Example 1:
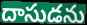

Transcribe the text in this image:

దాసుడను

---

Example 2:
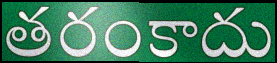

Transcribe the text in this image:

తరంకాదు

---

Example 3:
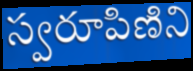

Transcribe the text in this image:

స్వరూపిణిని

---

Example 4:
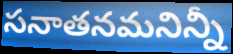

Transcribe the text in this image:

సనాతనమనిన్నీ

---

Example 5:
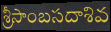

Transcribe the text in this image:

శ్రీసాంబసదాశివ